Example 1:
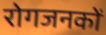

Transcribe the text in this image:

रोगजनकों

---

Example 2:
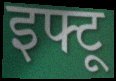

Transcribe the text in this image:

इफ्टू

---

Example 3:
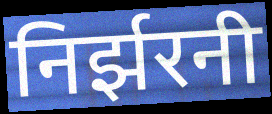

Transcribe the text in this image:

निर्झरनी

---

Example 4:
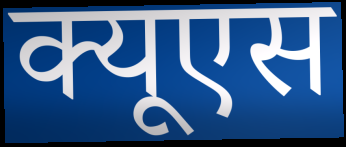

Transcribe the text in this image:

क्यूएस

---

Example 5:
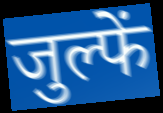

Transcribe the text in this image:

जुल्फें